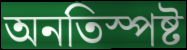
অনতিস্পষ্ট